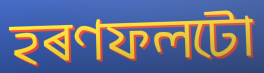
হৰণফলটো